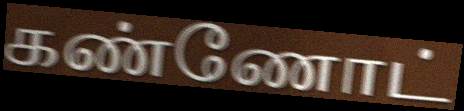
கண்ணோட்